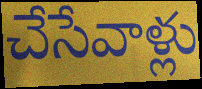
చేసేవాళ్లు